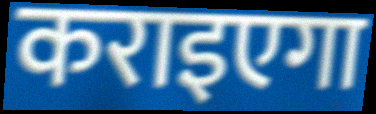
कराइएगा